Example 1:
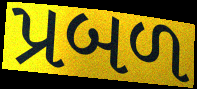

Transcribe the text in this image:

પ્રબળ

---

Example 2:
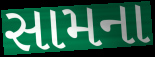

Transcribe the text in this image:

સામના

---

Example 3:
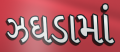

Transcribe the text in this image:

ઝઘડામાં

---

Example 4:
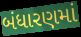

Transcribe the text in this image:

બંધારણમાં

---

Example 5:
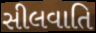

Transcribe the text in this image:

સીલવાતિ